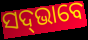
ସଦ୍‌ଭାବେ